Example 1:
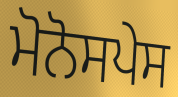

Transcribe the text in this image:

ਮੋਨੋਸਪੇਸ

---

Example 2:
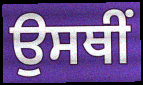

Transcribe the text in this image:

ਉਸਥੀਂ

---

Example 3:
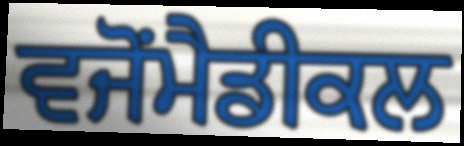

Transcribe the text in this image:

ਵਜੋਂਮੈਡੀਕਲ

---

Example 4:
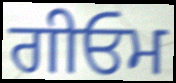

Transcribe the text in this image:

ਗੀਓਮ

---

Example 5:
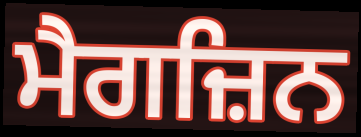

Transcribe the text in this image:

ਮੈਗਜ਼ਿਨ